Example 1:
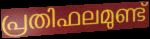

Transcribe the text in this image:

പ്രതിഫലമുണ്ട്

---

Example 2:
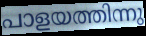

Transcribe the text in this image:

പാളയത്തിന്നു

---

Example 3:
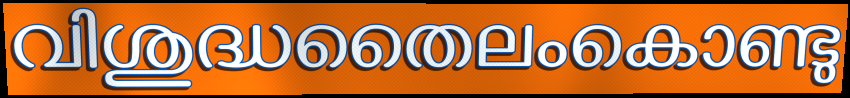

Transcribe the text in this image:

വിശുദ്ധതൈലംകൊണ്ടു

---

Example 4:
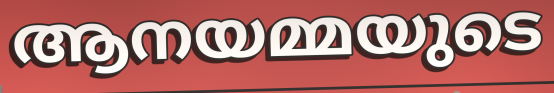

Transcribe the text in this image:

ആനയമ്മയുടെ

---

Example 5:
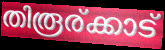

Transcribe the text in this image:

തിരൂര്ക്കാട്